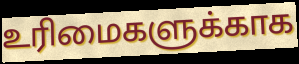
உரிமைகளுக்காக